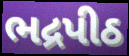
ભદ્રપીઠ